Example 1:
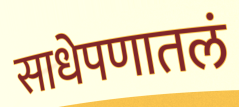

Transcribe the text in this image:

साधेपणातलं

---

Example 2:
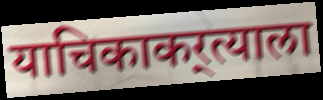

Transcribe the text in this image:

याचिकाकर्त्याला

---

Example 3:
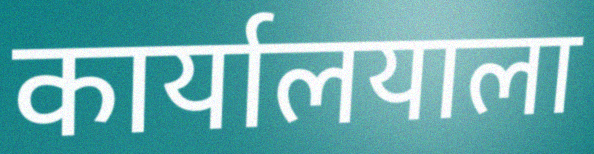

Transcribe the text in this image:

कार्यालयाला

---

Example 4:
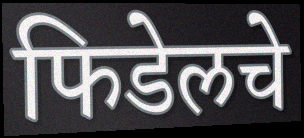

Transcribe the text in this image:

फिडेलचे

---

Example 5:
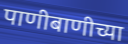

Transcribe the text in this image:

पाणीबाणीच्या